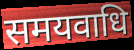
समयवाधि